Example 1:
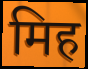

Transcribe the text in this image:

मिह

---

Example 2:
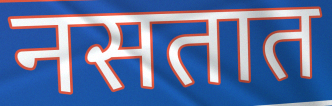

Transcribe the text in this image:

नसतात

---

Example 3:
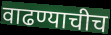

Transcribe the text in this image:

वाढण्याचीच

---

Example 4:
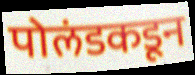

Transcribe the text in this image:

पोलंडकडून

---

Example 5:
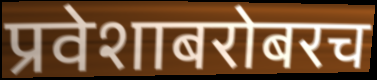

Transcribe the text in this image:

प्रवेशाबरोबरच